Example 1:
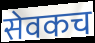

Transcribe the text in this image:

सेवकच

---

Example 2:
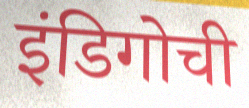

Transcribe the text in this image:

इंडिगोची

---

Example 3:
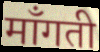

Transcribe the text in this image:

माँगती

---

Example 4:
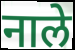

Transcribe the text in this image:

नाले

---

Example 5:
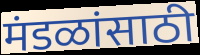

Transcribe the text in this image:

मंडळांसाठी